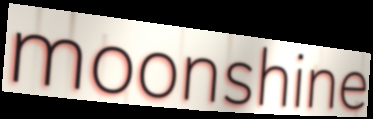
moonshine